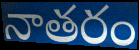
నాతరం